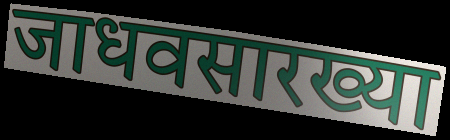
जाधवसारख्या